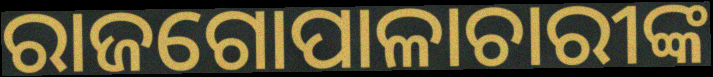
ରାଜଗୋପାଳାଚାରୀଙ୍କ